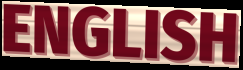
ENGLISH